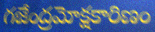
గజేంద్రమోక్షకారిణం